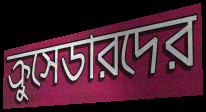
ক্রুসেডারদের